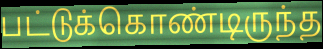
பட்டுக்கொண்டிருந்த